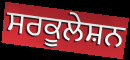
ਸਰਕੂਲੇਸ਼ਨ